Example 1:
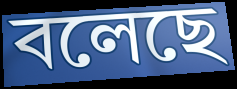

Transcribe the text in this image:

বলেছে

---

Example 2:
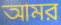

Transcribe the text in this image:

আমর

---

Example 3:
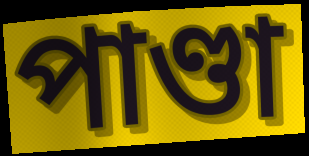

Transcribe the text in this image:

পাণ্ডা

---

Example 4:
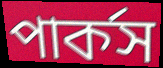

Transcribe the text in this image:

পার্কস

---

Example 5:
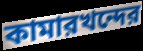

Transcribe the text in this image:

কামারখন্দের